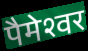
पैमेश्वर